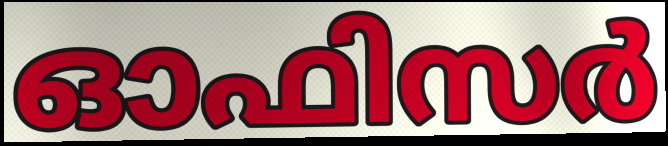
ഓഫിസർ